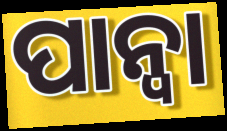
ପାନ୍ଵା